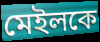
মেইলকে